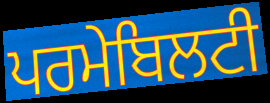
ਪਰਮੇਬਿਲਟੀ